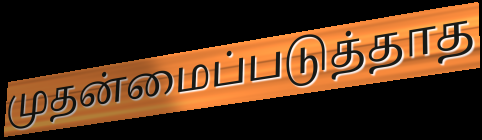
முதன்மைப்படுத்தாத